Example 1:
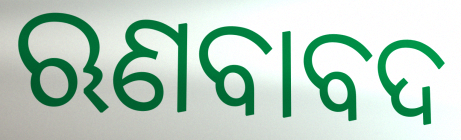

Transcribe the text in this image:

ଋଣବାବଦ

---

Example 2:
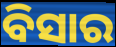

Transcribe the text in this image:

ବିସାର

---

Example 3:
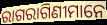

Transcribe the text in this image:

ରାଗରାଗିଣୀମାନେ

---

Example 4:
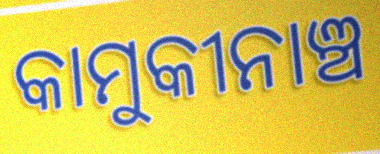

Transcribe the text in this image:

କାମୁକୀନାଞ୍ଚ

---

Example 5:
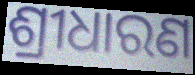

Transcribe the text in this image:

ଶ୍ରୀଧାରଣ